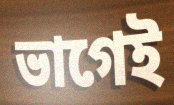
ভাগেই